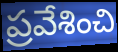
ప్రవేశించి